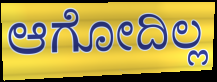
ಆಗೋದಿಲ್ಲ